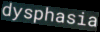
dysphasia